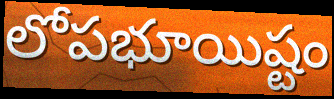
లోపభూయిష్టం